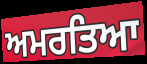
ਅਮਰਤਿਆ